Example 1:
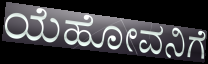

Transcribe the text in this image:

ಯೆಹೋವನಿಗೆ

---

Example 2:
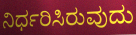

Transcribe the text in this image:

ನಿರ್ಧರಿಸಿರುವುದು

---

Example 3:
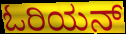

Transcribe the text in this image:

ಓರಿಯನ್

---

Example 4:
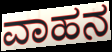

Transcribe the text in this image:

ವಾಹನ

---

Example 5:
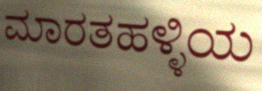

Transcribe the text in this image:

ಮಾರತಹಳ್ಳಿಯ